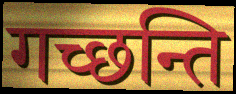
गच्छन्ति